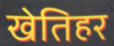
खेतिहर